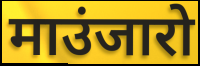
माउंजारो